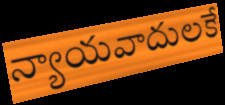
న్యాయవాదులకే